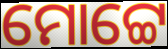
ମୋଟ୍ଟେ